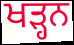
ਖੜ੍ਹਨ